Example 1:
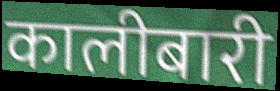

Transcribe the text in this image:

कालीबारी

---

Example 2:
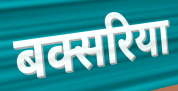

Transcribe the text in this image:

बक्सरिया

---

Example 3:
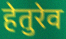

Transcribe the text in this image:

हेतुरेव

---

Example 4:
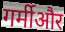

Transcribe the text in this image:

गर्मीऔर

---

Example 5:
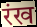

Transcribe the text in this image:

रंख